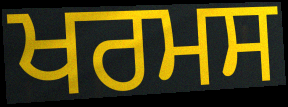
ਖਰਮਸ